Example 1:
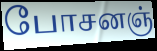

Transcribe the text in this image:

போசனஞ்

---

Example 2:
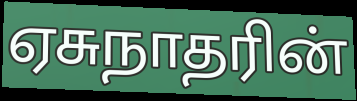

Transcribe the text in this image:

ஏசுநாதரின்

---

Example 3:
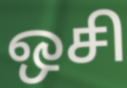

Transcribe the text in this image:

ஒசி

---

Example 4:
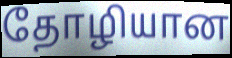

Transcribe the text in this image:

தோழியான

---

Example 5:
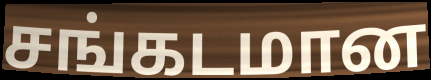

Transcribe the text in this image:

சங்கடமான